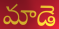
మాడె